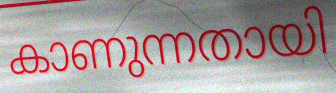
കാണുന്നതായി